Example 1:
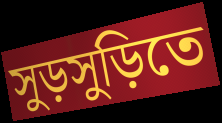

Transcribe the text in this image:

সুড়সুড়িতে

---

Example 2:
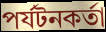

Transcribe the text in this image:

পর্যটনকর্তা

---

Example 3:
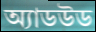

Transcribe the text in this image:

অ্যাডউড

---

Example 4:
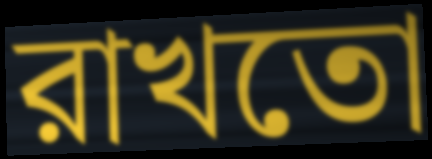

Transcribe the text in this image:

রাখতো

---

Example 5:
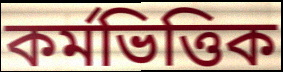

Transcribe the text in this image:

কর্মভিত্তিক